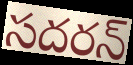
సదరన్